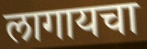
लागायचा